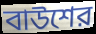
বাউশের